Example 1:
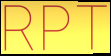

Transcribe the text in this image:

RPT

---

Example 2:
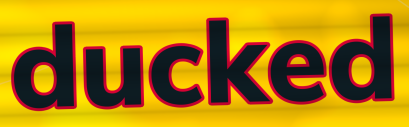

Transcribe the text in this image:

ducked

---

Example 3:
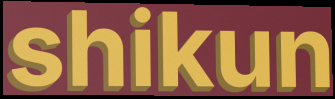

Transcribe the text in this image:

shikun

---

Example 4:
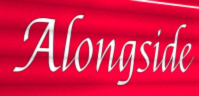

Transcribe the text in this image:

Alongside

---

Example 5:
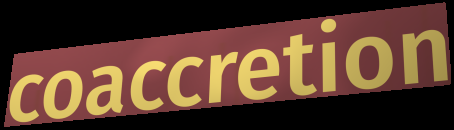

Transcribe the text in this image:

coaccretion